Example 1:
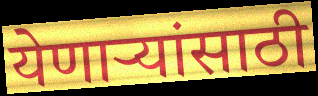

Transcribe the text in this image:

येणाऱ्यांसाठी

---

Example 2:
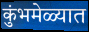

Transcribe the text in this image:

कुंभमेळ्यात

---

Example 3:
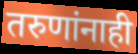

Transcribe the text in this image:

तरुणांनाही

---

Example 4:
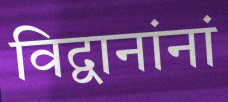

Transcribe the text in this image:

विद्वानांनां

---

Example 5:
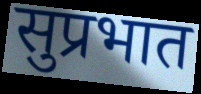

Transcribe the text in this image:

सुप्रभात